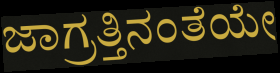
ಜಾಗ್ರತ್ತಿನಂತೆಯೇ